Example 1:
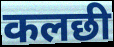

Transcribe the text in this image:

कलछी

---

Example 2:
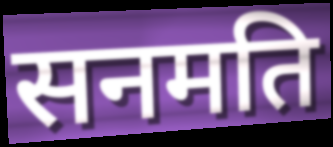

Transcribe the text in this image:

सनमति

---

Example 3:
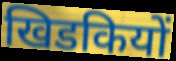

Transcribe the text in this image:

खिडकियों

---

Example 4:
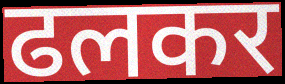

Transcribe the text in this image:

ढलकर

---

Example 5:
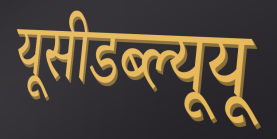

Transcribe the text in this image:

यूसीडब्ल्यूयू